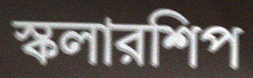
স্কলারশিপ